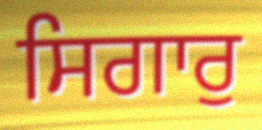
ਸਿਗਾਰੁ